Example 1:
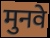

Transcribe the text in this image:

मुनवे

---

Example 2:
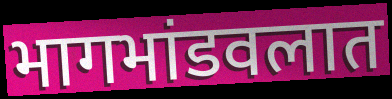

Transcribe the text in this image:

भागभांडवलात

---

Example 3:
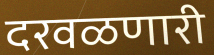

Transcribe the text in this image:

दरवळणारी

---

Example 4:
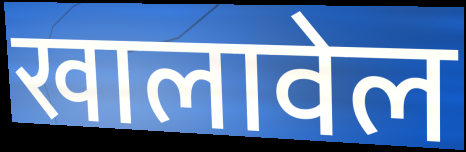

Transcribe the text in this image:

खालावेल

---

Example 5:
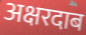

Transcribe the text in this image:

अक्षरदाब